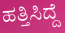
ಹತ್ತಿಸಿದ್ದೆ